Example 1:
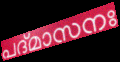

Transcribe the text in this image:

പദ്മാസനഃ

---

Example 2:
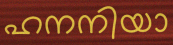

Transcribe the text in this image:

ഹനനിയാ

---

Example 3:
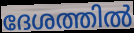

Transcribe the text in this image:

ദേശത്തിൽ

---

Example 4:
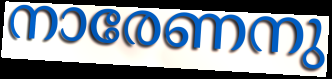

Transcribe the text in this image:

നാരേണനു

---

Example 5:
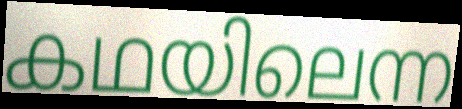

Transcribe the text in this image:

കഥയിലെന്ന